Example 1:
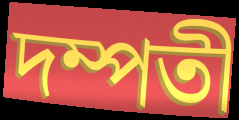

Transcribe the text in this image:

দম্পতী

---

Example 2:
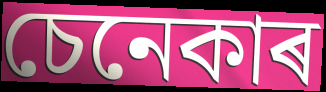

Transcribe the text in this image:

চেনেকাৰ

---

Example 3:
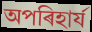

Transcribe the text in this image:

অপৰিহাৰ্য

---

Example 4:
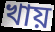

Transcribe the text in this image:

খায়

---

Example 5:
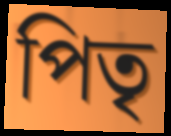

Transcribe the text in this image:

পিতৃ